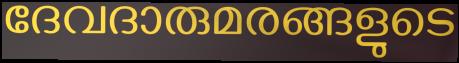
ദേവദാരുമരങ്ങളുടെ